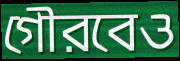
গৌরবেও